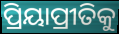
ପ୍ରିୟାପ୍ରୀତିକୁ